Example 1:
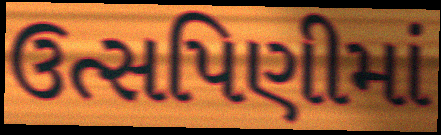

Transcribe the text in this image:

ઉત્સપિણીમાં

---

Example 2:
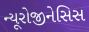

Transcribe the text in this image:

ન્યૂરોજીનેસિસ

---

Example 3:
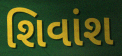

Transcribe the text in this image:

શિવાંશ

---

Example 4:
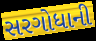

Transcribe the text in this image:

સરગોધાની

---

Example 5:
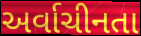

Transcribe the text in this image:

અર્વાચીનતા